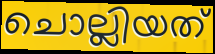
ചൊല്ലിയത്